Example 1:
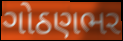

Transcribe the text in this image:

ગોઠણભર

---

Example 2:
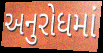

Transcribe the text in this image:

અનુરોધમાં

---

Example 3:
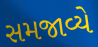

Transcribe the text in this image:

સમજાવ્યે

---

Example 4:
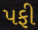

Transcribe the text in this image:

પફી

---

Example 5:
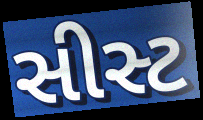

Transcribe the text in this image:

સીસ્ટ